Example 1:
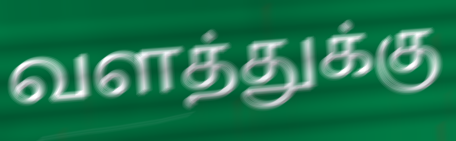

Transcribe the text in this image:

வளத்துக்கு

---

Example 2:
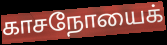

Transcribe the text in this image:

காசநோயைக்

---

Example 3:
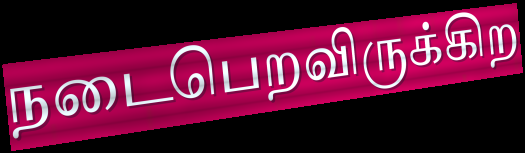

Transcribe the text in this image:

நடைபெறவிருக்கிற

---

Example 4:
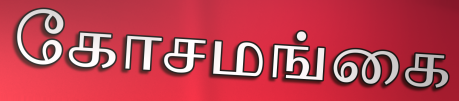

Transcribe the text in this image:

கோசமங்கை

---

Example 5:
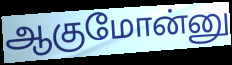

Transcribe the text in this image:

ஆகுமோன்னு